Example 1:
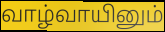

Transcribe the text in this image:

வாழ்வாயினும்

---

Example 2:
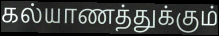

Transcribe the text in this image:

கல்யாணத்துக்கும்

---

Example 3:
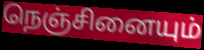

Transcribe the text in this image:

நெஞ்சினையும்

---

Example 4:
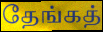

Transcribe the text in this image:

தேங்கத்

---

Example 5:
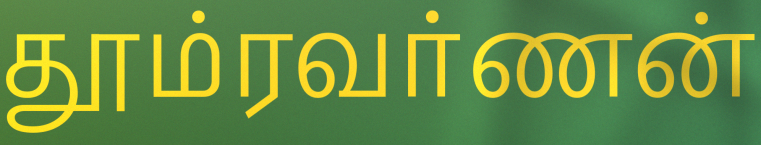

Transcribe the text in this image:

தூம்ரவர்ணன்